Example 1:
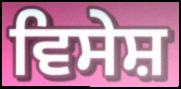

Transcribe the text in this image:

ਵਿਸੇਸ਼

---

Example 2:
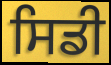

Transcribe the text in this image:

ਸਿਡੀ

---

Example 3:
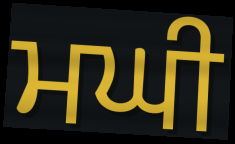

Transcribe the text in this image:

ਮਘੀ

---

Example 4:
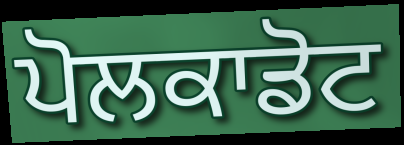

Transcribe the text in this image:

ਪੋਲਕਾਡੋਟ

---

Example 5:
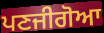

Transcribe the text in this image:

ਪਣਜੀਗੋਆ